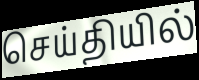
செய்தியில்